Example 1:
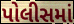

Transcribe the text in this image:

પોલીસમાં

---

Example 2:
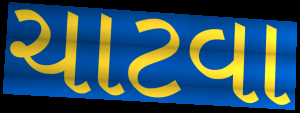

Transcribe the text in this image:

ચાટવા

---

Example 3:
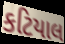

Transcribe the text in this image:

કટિયાલ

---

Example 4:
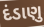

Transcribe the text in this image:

દંડાણુ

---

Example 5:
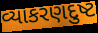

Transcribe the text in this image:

વ્યાકરણદુષ્ટ